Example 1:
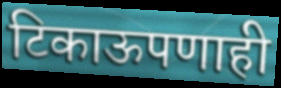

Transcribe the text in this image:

टिकाऊपणाही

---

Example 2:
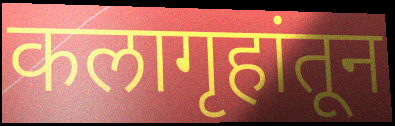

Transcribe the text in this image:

कलागृहांतून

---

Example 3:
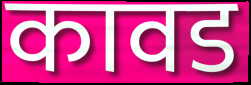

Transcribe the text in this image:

कावड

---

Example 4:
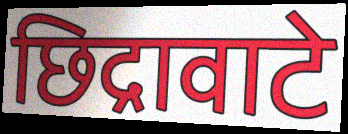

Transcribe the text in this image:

छिद्रावाटे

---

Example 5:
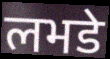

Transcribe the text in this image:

लभडे